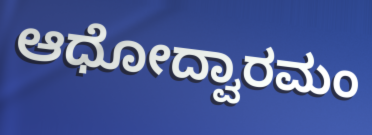
ಆಧೋದ್ವಾರಮಂ